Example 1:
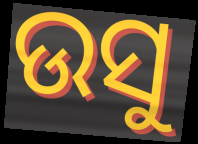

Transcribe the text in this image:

ଉସୁ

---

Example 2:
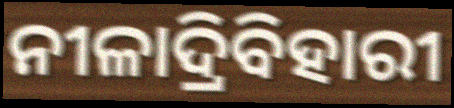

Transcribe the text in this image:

ନୀଳାଦ୍ରିବିହାରୀ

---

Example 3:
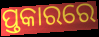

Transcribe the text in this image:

ପ୍ତକାରରେ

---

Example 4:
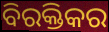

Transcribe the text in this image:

ବିରକ୍ତିକର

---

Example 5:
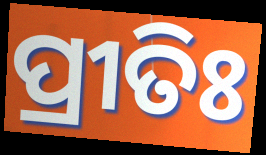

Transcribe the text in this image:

ପ୍ରୀତିଃ